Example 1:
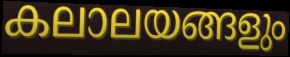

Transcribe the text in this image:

കലാലയങ്ങളും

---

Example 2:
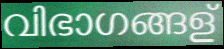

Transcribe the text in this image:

വിഭാഗങ്ങള്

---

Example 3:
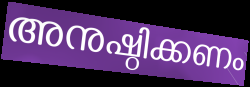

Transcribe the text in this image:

അനുഷ്ഠിക്കണം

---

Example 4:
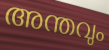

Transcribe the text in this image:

അന്തവും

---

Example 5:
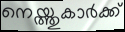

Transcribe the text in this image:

നെയ്ത്തുകാർക്ക്